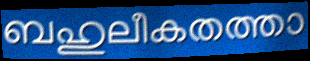
ബഹുലീകതത്താ